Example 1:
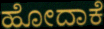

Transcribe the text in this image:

ಹೋದಾಕೆ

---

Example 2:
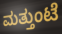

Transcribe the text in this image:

ಮತ್ತುಂಟೆ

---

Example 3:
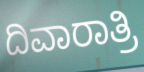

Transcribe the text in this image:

ದಿವಾರಾತ್ರಿ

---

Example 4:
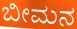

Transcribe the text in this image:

ಬೀಮನ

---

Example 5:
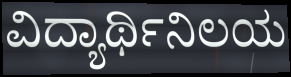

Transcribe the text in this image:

ವಿದ್ಯಾರ್ಥಿನಿಲಯ